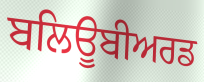
ਬਲਿਊਬੀਅਰਡ